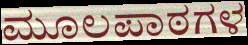
ಮೂಲಪಾಠಗಳ